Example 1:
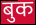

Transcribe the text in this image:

बुक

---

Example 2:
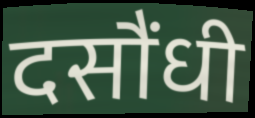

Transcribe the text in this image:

दसौंधी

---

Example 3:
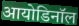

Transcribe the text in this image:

आयोडिनॉल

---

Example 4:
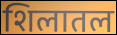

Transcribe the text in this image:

शिलातल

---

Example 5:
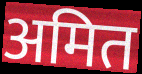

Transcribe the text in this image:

अमित